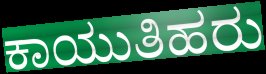
ಕಾಯುತಿಹರು